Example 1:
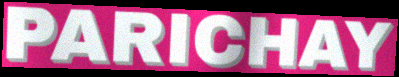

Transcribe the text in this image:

PARICHAY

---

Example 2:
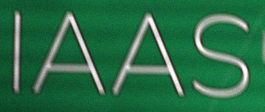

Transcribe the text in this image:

IAAS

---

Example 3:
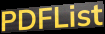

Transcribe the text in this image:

PDFList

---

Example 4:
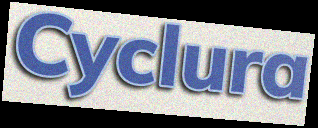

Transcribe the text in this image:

Cyclura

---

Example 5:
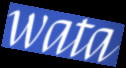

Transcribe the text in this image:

wata